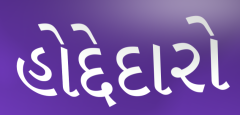
હોદ્દેદારો